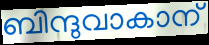
ബിന്ദുവാകാന്